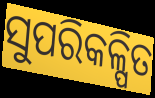
ସୁପରିକଳ୍ପିତ